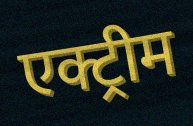
एक्ट्रीम